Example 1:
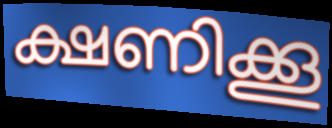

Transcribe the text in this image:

ക്ഷണിക്കൂ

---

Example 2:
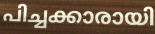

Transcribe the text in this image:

പിച്ചക്കാരായി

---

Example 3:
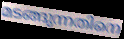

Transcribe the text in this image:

മടങ്ങുന്നതിനെ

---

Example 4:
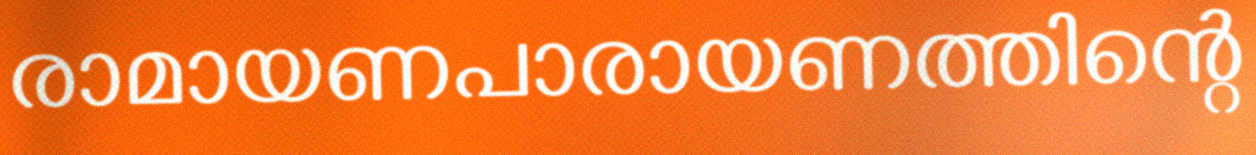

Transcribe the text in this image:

രാമായണപാരായണത്തിന്റെ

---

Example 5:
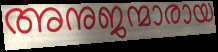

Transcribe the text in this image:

അനുജന്മാരായ